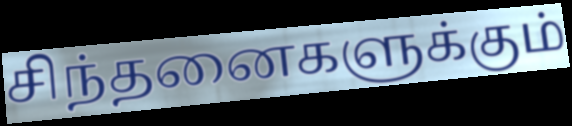
சிந்தனைகளுக்கும்